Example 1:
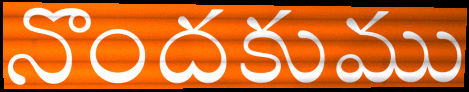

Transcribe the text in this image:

నొందకుము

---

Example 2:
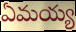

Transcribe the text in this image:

ఏమయ్య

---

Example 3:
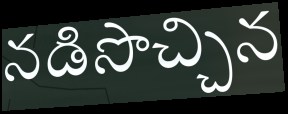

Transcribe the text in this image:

నడిసొచ్చిన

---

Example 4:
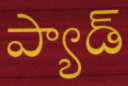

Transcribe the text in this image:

ప్యాడ్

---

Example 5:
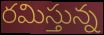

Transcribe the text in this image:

రమిస్తున్న